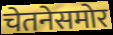
चेतनेसमोर